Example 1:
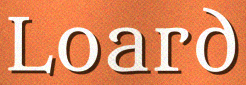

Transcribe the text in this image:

Loard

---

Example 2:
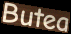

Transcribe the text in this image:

Butea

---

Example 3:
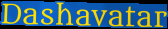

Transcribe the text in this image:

Dashavatar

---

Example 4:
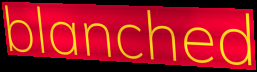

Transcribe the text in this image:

blanched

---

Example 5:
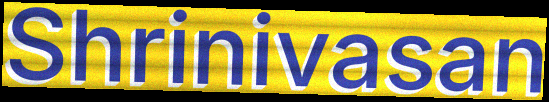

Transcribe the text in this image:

Shrinivasan